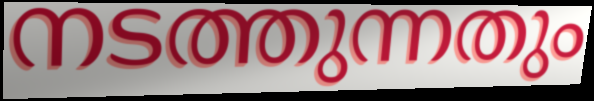
നടത്തുന്നതും